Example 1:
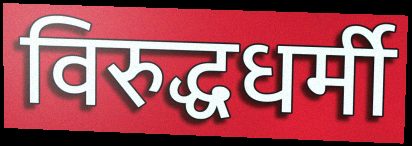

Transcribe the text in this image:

विरुद्धधर्मी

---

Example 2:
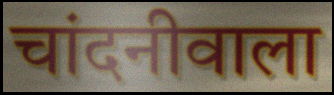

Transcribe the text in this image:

चांदनीवाला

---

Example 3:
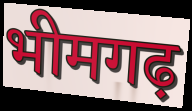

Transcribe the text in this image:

भीमगढ़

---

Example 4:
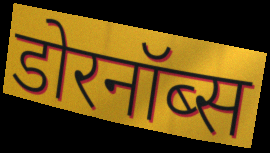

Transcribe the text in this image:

डोरनॉब्स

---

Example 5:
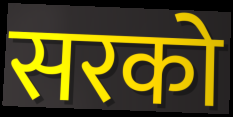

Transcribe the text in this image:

सरको